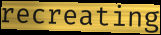
recreating